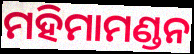
ମହିମାମଣ୍ଡନ